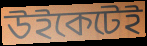
উইকেটেই